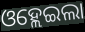
ଓହ୍ଲେଇଲା